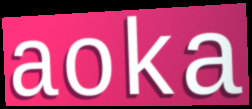
aoka